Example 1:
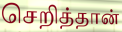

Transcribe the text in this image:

செறித்தான்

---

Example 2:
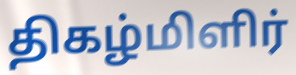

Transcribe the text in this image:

திகழ்மிளிர்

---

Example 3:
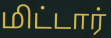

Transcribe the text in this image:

மிட்டார்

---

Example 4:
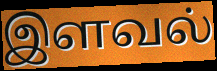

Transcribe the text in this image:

இளவல்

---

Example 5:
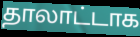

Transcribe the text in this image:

தாலாட்டாக